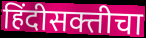
हिंदीसक्तीचा